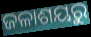
ଜଳାଶୟରୁ